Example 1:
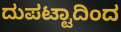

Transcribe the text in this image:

ದುಪಟ್ಟಾದಿಂದ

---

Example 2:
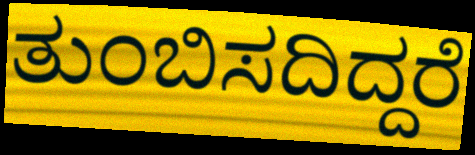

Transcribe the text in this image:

ತುಂಬಿಸದಿದ್ದರೆ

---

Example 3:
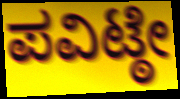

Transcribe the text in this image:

ಪವಿಟ್ಠೇ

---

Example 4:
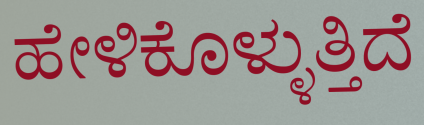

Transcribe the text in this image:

ಹೇಳಿಕೊಳ್ಳುತ್ತಿದೆ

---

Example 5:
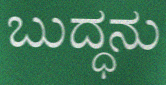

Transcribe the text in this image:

ಬುದ್ಧನು